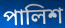
পালিশ